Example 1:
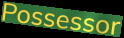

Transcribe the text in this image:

Possessor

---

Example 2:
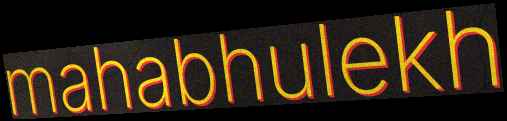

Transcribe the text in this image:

mahabhulekh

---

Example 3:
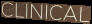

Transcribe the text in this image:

CLINICAL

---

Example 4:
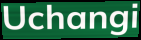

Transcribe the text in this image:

Uchangi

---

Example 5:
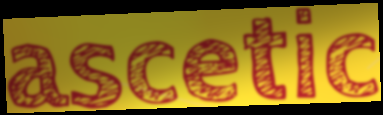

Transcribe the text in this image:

ascetic